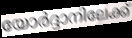
യോർദ്ദാനിലേക്ക്